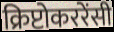
क्रिप्टोकररेंसी